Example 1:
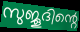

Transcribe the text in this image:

സുജൂദിന്റെ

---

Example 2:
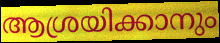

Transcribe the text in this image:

ആശ്രയിക്കാനും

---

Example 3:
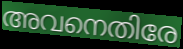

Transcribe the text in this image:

അവനെതിരേ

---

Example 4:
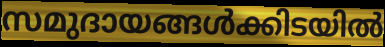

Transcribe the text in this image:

സമുദായങ്ങൾക്കിടയിൽ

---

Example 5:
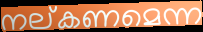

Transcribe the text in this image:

നല്കണമെന്ന